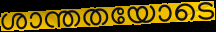
ശാന്തതയോടെ